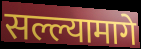
सल्ल्यामागे